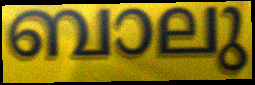
ബാലു